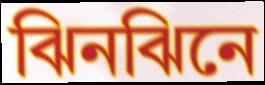
ঝিনঝিনে